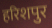
हरिशपुर